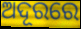
ଅଦୂରରେ